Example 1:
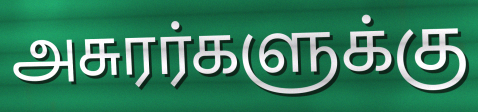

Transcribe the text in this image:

அசுரர்களுக்கு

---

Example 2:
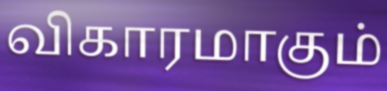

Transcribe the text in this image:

விகாரமாகும்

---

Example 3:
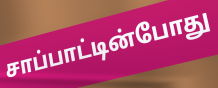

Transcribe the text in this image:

சாப்பாட்டின்போது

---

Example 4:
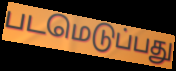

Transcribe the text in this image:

படமெடுப்பது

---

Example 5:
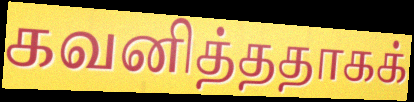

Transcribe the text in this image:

கவனித்ததாகக்